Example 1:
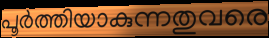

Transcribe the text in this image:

പൂർത്തിയാകുന്നതുവരെ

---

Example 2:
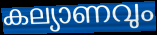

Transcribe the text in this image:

കല്യാണവും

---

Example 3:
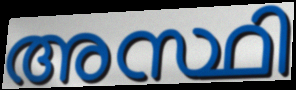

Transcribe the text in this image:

അസ്ഥി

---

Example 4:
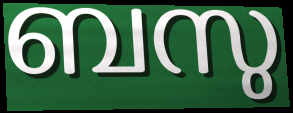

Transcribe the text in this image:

ബസു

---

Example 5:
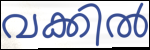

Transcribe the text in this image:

വക്കിൽ